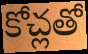
కోచ్లతో